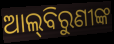
ଆଲ୍‌ବିରୁଣୀଙ୍କ